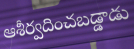
ఆశీర్వదించబడ్డాడు